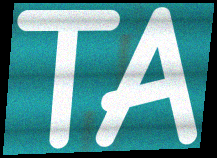
TA